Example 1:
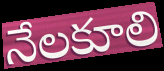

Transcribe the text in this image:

నేలకూలి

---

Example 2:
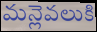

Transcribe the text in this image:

మన్లెవలుకి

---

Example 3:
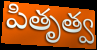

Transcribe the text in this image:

పితృత్వ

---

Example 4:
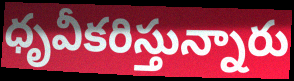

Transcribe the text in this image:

ధృవీకరిస్తున్నారు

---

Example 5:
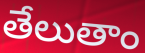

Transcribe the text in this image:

తేలుతాం